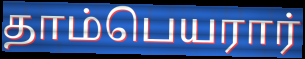
தாம்பெயரார்